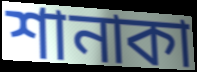
শানাকা